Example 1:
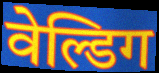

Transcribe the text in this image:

वेल्डिग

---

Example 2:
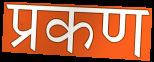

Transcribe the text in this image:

प्रकण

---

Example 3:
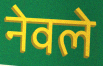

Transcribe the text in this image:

नेवले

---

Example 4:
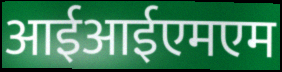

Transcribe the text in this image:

आईआईएमएम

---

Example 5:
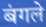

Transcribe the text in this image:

बंगले